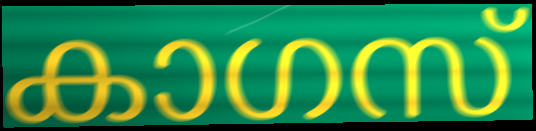
കാഗസ്